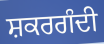
ਸ਼ਕਰਗੰਦੀ